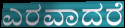
ಎರವಾದರೆ